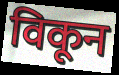
विकून